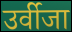
उर्वीजा